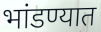
भांडण्यात